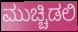
ಮುಚ್ಚಿಡಲಿ